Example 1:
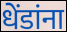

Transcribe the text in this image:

धेंडांना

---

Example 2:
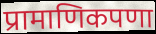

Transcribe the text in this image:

प्रामाणिकपणा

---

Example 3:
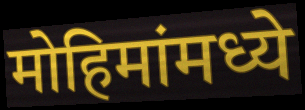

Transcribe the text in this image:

मोहिमांमध्ये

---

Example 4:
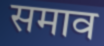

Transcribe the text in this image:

समाव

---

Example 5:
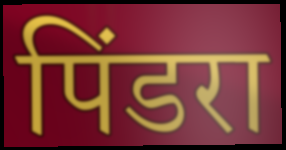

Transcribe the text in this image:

पिंडरा